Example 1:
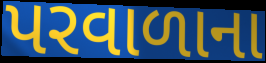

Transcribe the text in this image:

પરવાળાના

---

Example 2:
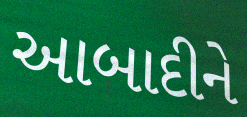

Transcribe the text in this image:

આબાદીને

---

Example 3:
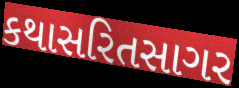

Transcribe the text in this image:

કથાસરિતસાગર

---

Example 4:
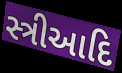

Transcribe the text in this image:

સ્ત્રીઆદિ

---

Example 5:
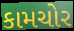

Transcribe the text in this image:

કામચોર